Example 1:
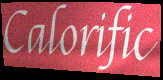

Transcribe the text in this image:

Calorific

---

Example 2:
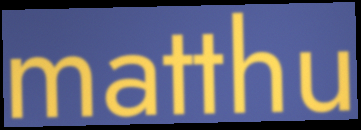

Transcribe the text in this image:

matthu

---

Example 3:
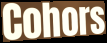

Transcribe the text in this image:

Cohors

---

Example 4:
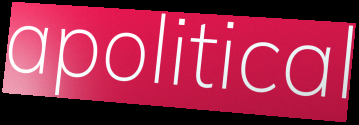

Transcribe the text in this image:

apolitical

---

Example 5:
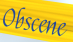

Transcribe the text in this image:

Obscene